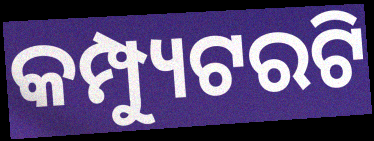
କମ୍ପ୍ୟୁଟରଟି